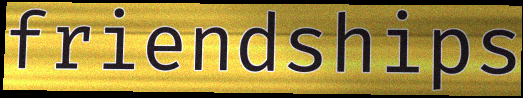
friendships